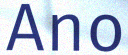
Ano